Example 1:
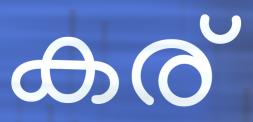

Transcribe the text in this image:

കര്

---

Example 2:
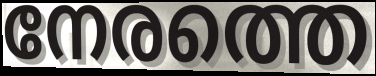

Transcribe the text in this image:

നേരത്തെ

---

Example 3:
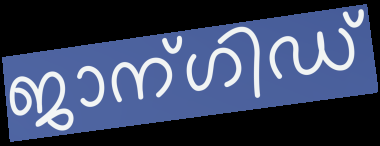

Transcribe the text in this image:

ജാന്ഗിഡ്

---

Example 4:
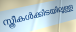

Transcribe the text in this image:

സ്ത്രീകൾക്കിടയിലുള്ള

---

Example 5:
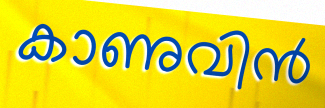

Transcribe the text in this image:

കാണുവിൻ